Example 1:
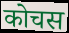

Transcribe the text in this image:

कोचस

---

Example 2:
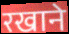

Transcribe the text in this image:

रखाने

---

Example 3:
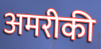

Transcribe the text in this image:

अमरीकी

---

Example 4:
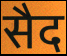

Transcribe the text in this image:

सैद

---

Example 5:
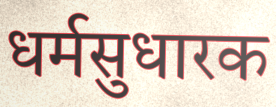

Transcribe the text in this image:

धर्मसुधारक